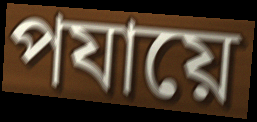
পযায়ে